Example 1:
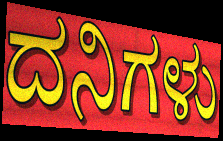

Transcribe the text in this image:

ದನಿಗಳು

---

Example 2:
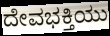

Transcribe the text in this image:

ದೇವಭಕ್ತಿಯು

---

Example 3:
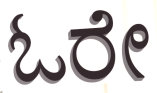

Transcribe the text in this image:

ಓರೇ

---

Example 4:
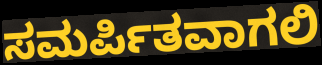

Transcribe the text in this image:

ಸಮರ್ಪಿತವಾಗಲಿ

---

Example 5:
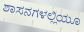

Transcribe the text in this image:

ಶಾಸನಗಳಲ್ಲಿಯೂ